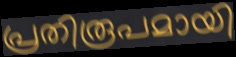
പ്രതിരൂപമായി